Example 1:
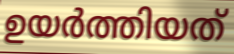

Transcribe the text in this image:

ഉയർത്തിയത്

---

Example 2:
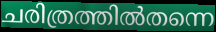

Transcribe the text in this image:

ചരിത്രത്തിൽതന്നെ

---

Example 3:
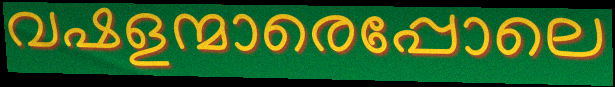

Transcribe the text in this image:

വഷളന്മാരെപ്പോലെ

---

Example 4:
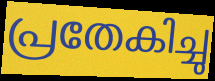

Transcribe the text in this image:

പ്രതേകിച്ചു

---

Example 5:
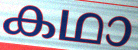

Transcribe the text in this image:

കഥാ